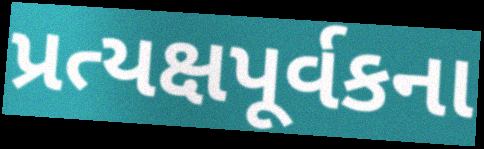
પ્રત્યક્ષપૂર્વકના